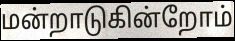
மன்றாடுகின்றோம்